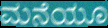
ಮನೆಯೂ